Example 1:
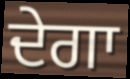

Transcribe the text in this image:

ਦੇਗਾ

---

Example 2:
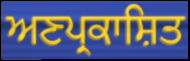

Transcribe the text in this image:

ਅਣਪ੍ਰਕਾਸ਼ਿਤ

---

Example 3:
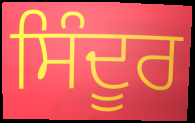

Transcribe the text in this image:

ਸਿੰਦੂਰ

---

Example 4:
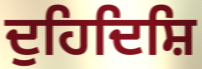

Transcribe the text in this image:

ਦੁਹਿਦਿਸ਼ਿ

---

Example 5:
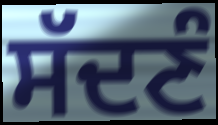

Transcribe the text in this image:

ਸੱਦਣੰ